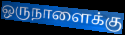
ஒருநாளைக்கு